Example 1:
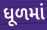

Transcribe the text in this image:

ધૂળમાં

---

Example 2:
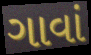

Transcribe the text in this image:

ગાવાં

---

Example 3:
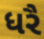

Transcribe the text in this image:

ધરૈ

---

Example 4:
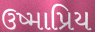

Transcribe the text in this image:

ઉષ્માપ્રિય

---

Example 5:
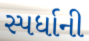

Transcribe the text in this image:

સ્પર્ધાની